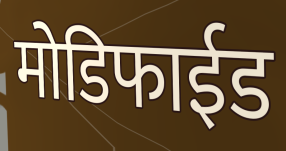
मोडिफाईड